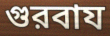
গুরবায